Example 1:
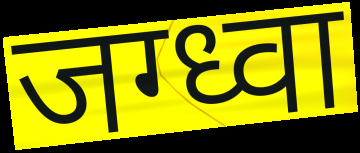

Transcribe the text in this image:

जग्ध्वा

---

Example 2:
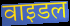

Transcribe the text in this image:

वाइडल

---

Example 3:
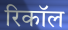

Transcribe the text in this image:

रिकॉल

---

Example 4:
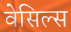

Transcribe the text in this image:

वेसिल्स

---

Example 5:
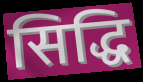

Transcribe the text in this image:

सिद्धि